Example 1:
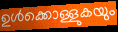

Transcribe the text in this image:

ഉൾക്കൊള്ളുകയും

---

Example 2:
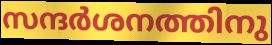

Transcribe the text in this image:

സന്ദർശനത്തിനു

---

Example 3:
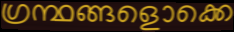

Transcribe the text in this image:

ഗ്രന്ഥങ്ങളൊക്കെ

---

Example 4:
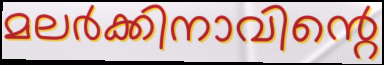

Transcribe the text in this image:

മലർക്കിനാവിന്റെ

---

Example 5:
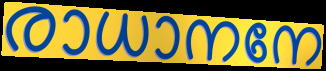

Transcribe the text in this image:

രാധാനനേ